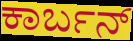
ಕಾರ್ಬನ್